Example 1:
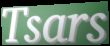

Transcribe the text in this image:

Tsars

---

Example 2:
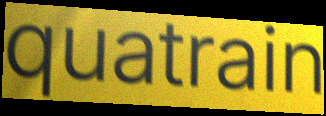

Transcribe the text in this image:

quatrain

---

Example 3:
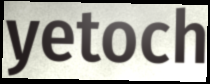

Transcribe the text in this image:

yetoch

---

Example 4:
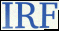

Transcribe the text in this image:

IRF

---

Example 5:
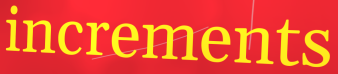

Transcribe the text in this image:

increments